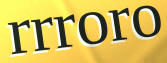
rrroro